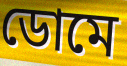
ডোমে